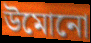
উমোনো